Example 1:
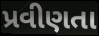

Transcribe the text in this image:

પ્રવીણતા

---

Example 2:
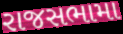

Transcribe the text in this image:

રાજસભામા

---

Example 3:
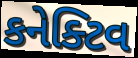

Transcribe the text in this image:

કનેક્ટિવ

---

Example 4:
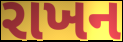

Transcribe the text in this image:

રાખન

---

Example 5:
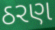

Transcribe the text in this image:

ઠરણ